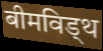
बीमविड्थ